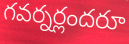
గవర్నర్లందరూ